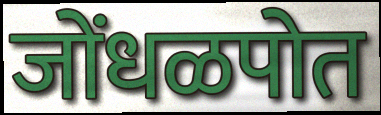
जोंधळपोत